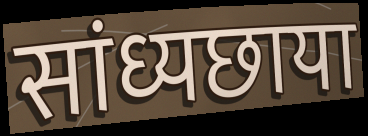
सांध्यछाया